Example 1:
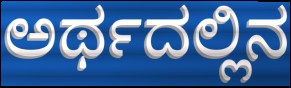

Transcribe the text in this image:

ಅರ್ಥದಲ್ಲಿನ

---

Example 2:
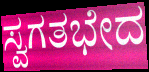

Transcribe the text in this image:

ಸ್ವಗತಭೇದ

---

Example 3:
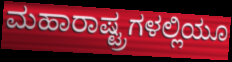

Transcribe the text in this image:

ಮಹಾರಾಷ್ಟ್ರಗಳಲ್ಲಿಯೂ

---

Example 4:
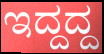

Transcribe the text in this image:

ಇದ್ದದ್ದ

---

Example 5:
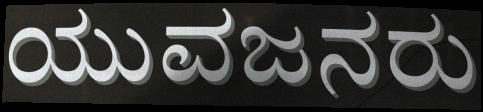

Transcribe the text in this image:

ಯುವಜನರು